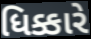
ધિક્કારે